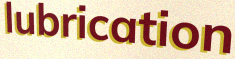
lubrication